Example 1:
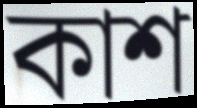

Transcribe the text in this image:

কাশ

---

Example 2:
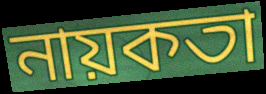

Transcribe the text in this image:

নায়কতা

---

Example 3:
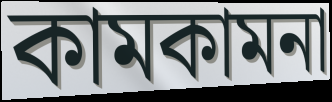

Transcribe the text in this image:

কামকামনা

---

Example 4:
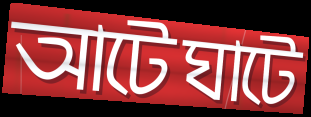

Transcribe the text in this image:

আটেঘাটে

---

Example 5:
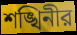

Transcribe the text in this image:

শঙ্খিনীর